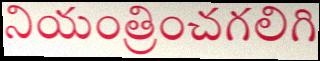
నియంత్రించగలిగి